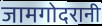
जामगोदरानी